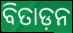
ବିତାଡ଼ନ